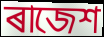
ৰাজেশ